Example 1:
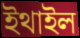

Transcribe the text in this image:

ইথাইল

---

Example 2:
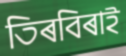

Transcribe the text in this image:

তিৰবিৰাই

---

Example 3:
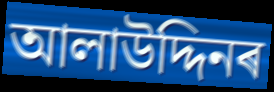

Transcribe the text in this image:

আলাউদ্দিনৰ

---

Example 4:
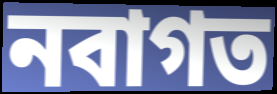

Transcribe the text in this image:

নবাগত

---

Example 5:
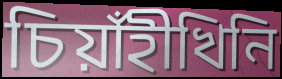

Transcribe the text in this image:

চিয়াঁহীখিনি